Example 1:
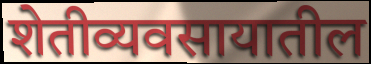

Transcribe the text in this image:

शेतीव्यवसायातील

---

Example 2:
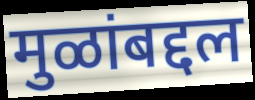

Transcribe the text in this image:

मुळांबद्दल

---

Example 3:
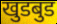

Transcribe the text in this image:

खुडबुड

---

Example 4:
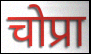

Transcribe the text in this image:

चोप्रा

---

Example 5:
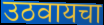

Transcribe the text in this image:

उठवायचा